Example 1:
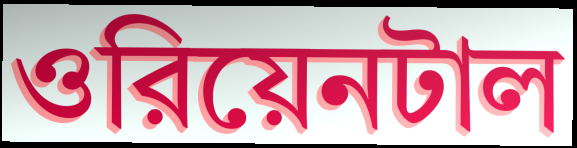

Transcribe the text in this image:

ওরিয়েনটাল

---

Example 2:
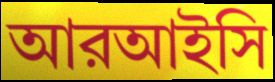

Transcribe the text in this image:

আরআইসি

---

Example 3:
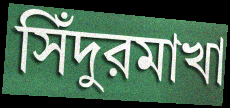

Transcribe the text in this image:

সিঁদুরমাখা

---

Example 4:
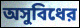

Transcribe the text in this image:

অসুবিধের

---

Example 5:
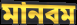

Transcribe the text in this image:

মানবম